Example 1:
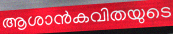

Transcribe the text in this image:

ആശാൻകവിതയുടെ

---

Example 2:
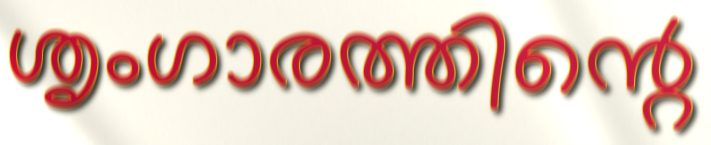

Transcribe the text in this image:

ശൃംഗാരത്തിന്റെ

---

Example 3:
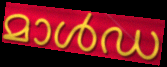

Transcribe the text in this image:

മാൾഡ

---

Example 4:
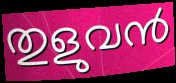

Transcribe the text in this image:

തുളുവൻ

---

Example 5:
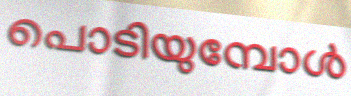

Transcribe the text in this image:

പൊടിയുമ്പോൾ